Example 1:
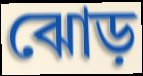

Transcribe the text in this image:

ঝোড়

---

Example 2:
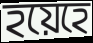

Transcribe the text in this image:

হয়েহে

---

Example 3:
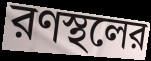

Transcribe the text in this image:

রণস্থলের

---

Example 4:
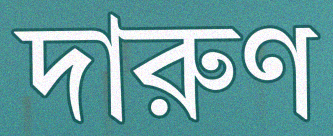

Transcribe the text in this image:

দারুণ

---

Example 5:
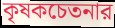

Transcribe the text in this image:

কৃষকচেতনার